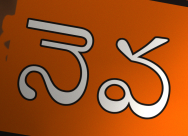
నెవ